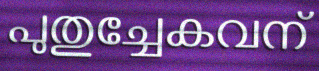
പുതുച്ചേകവന്